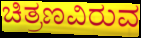
ಚಿತ್ರಣವಿರುವ